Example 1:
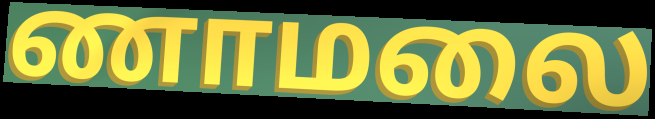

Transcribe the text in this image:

ணாமலை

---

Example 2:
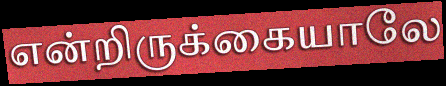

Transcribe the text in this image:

என்றிருக்கையாலே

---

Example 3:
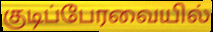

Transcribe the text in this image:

குடிப்பேரவையில்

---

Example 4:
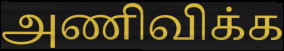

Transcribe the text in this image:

அணிவிக்க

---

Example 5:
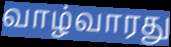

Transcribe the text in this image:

வாழ்வாரது